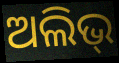
ଅଲିଭ୍